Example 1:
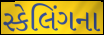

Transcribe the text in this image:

સ્કેલિંગના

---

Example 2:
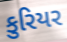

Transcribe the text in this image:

કુરિયર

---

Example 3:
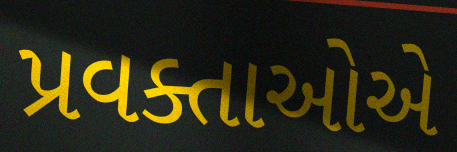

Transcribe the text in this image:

પ્રવક્તાઓએ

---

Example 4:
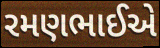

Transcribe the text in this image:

રમણભાઈએ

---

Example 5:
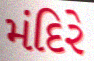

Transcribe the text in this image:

મંદિરે